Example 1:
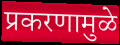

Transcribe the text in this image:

प्रकरणामुळे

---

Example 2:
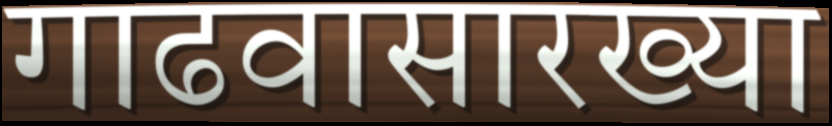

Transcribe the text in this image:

गाढवासारख्या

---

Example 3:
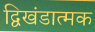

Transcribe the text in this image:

द्विखंडात्मक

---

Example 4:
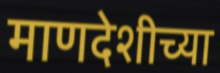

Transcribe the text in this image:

माणदेशीच्या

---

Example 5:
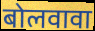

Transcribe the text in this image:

बोलवावा